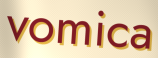
vomica